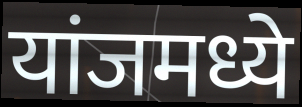
यांजमध्ये